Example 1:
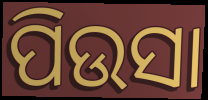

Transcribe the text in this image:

ପିଉସା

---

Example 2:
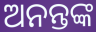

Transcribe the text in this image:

ଅନନ୍ତଙ୍କ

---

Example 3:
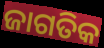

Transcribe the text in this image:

ଜାଗତିକ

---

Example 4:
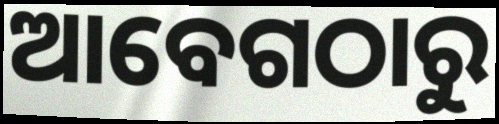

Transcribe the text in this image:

ଆବେଗଠାରୁ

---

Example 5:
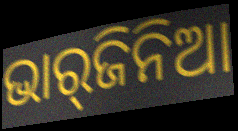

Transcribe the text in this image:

ଭାର୍‌ଜିନିଆ